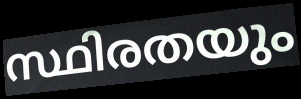
സ്ഥിരതയും